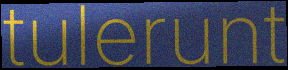
tulerunt